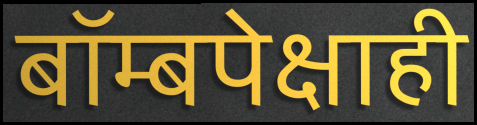
बॉम्बपेक्षाही